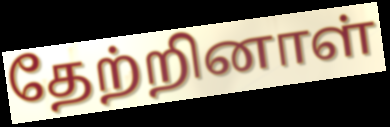
தேற்றினாள்